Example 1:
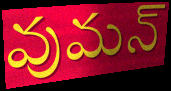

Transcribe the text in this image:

వుమన్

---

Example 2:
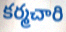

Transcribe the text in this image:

కర్మచారి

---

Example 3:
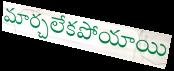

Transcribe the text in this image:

మార్చలేకపోయాయి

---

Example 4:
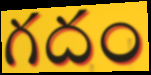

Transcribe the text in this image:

గదం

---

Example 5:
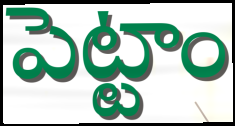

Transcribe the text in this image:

పెట్టాం